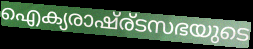
ഐക്യരാഷ്ര്ടസഭയുടെ